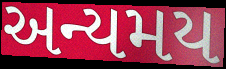
અન્યમય